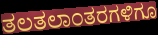
ತಲತಲಾಂತರಗಳಿಗೂ